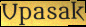
Upasak